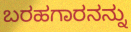
ಬರಹಗಾರನನ್ನು